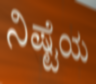
ನಿಷ್ಟೆಯ